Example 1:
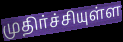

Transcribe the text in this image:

முதிர்ச்சியுள்ள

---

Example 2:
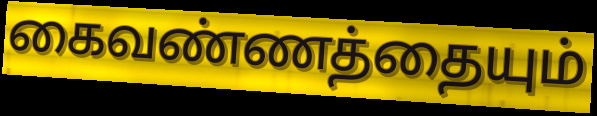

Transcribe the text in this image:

கைவண்ணத்தையும்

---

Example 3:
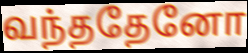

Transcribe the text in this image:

வந்ததேனோ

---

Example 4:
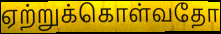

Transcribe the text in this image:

ஏற்றுக்கொள்வதோ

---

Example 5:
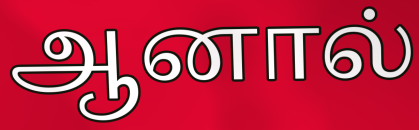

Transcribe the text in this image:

ஆனால்